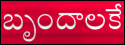
బృందాలకే